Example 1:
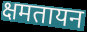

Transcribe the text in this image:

क्षमतायन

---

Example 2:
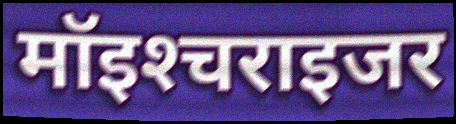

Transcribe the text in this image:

मॉइश्‍चराइजर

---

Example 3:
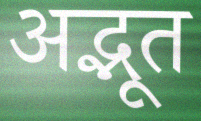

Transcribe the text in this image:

अद्भूत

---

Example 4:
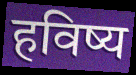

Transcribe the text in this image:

हविष्‍य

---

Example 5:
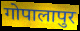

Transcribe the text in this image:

गोपालापुर